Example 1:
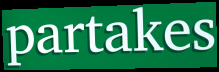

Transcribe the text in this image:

partakes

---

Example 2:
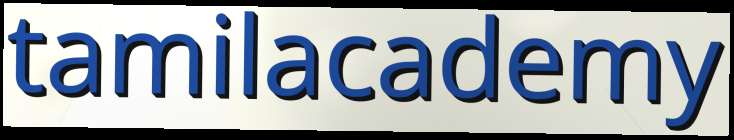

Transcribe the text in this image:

tamilacademy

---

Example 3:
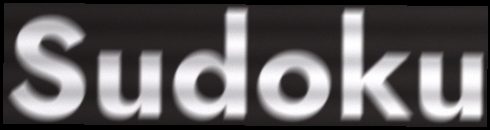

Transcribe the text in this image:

Sudoku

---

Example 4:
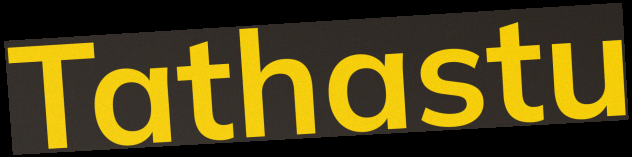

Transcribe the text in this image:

Tathastu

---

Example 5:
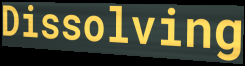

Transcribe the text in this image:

Dissolving